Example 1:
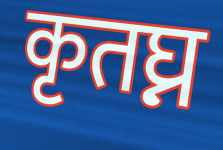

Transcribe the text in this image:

कृतघ्न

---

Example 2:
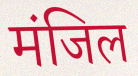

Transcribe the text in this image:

मंजिल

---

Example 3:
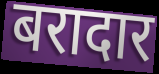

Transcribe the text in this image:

बरादार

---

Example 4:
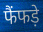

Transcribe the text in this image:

फैंफड़े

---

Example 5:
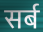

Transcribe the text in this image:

सर्ब